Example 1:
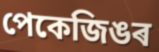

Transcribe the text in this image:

পেকেজিঙৰ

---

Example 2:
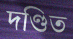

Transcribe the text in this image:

দণ্ডিত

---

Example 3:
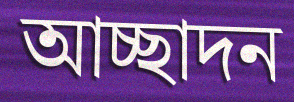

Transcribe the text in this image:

আচ্ছাদন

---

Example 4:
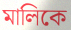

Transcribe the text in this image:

মালিকে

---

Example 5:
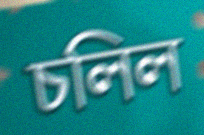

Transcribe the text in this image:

চলিল